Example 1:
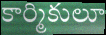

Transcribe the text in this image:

కార్మికులూ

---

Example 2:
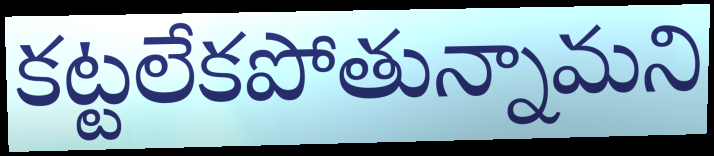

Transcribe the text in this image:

కట్టలేకపోతున్నామని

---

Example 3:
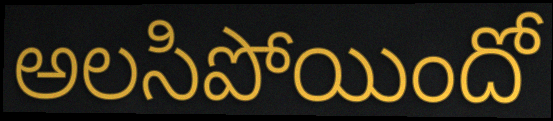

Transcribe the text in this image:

అలసిపోయిందో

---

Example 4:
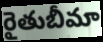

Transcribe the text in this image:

రైతుబీమా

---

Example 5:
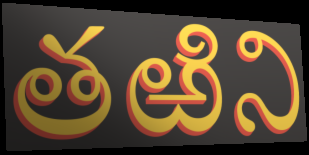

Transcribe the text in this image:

తఱిని